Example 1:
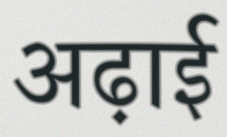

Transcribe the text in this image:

अढ़ाई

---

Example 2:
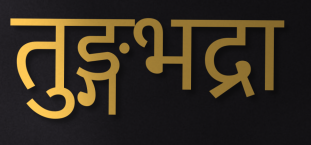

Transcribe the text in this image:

तुङ्गभद्रा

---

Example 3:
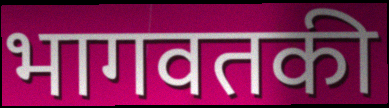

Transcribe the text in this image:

भागवतकी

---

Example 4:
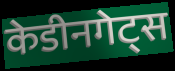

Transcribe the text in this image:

केडीनगेट्स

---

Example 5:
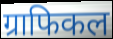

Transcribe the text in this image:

ग्राफिकल